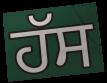
ਹੱਸ